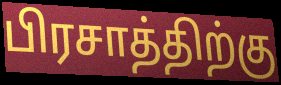
பிரசாத்திற்கு